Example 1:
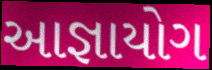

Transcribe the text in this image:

આજ્ઞાયોગ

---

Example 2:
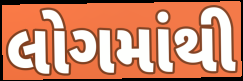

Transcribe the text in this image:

લોગમાંથી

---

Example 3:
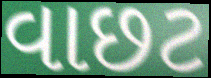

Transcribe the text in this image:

વાછટ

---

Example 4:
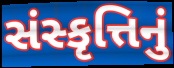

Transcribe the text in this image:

સંસ્કૃત્તિનું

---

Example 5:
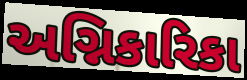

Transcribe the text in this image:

અગ્નિકારિકા